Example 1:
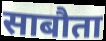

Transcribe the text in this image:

साबौता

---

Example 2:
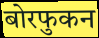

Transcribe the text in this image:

बोरफुकन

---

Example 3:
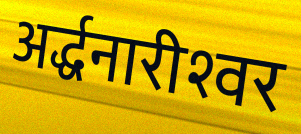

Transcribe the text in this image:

अर्द्धनारीश्वर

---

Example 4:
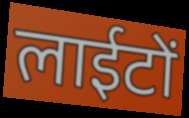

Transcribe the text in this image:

लाईटों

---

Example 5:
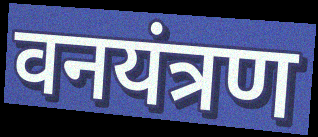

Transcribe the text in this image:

वनयंत्रण